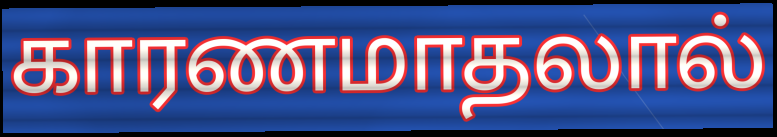
காரணமாதலால்